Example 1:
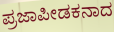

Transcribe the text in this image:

ಪ್ರಜಾಪೀಡಕನಾದ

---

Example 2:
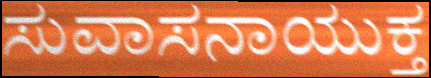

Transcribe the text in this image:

ಸುವಾಸನಾಯುಕ್ತ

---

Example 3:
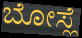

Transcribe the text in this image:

ಬೋಸ್ಲೆ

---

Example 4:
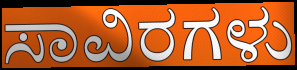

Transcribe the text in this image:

ಸಾವಿರಗಳು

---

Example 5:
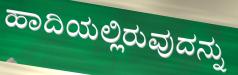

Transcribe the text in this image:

ಹಾದಿಯಲ್ಲಿರುವುದನ್ನು